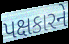
પક્ષકારને